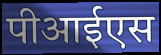
पीआईएस